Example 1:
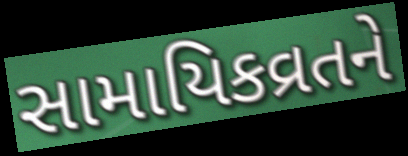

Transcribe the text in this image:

સામાયિકવ્રતને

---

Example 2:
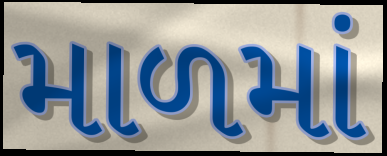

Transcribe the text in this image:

માળમાં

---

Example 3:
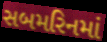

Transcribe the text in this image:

સબમરિનમાં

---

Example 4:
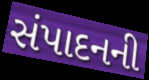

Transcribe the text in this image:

સંપાદનની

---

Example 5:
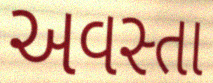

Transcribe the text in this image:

અવસ્તા